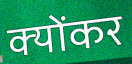
क्‍योंकर